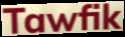
Tawfik